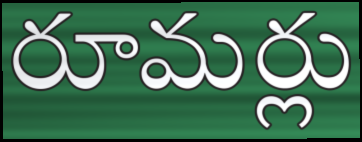
రూమర్లు